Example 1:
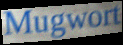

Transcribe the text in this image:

Mugwort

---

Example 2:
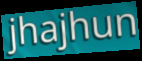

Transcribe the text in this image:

jhajhun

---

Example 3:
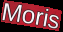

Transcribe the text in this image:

Moris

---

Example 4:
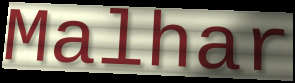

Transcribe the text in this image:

Malhar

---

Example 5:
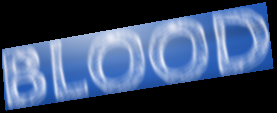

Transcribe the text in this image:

BLOOD